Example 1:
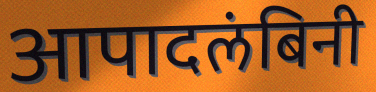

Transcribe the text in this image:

आपादलंबिनी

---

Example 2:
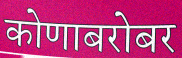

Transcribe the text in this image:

कोणाबरोबर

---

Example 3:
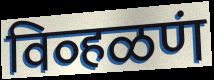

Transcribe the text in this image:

विव्हळणं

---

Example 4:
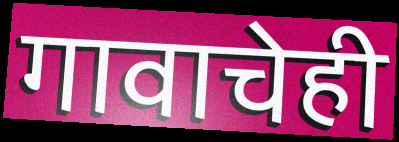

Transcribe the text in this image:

गावाचेही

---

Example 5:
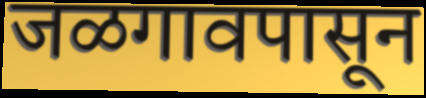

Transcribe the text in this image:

जळगावपासून